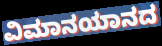
ವಿಮಾನಯಾನದ